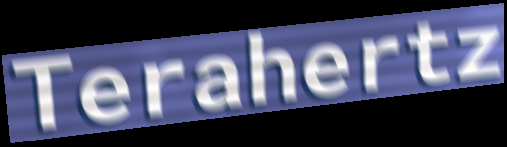
Terahertz